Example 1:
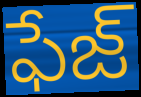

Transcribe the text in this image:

ఫేజ్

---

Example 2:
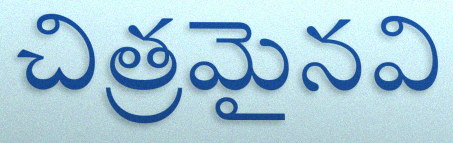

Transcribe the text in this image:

చిత్రమైనవి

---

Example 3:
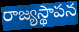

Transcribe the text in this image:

రాజ్యస్థాపన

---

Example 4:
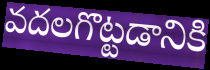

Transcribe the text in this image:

వదలగొట్టడానికి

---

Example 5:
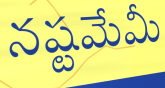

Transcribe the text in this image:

నష్టమేమీ